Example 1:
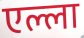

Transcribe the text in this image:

एल्ला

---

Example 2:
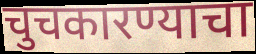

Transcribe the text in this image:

चुचकारण्याचा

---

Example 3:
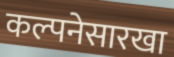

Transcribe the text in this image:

कल्पनेसारखा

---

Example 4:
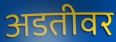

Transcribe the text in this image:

अडतीवर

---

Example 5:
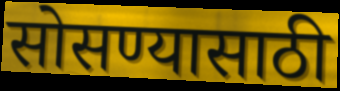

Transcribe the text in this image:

सोसण्यासाठी